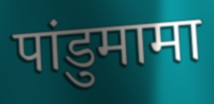
पांडुमामा